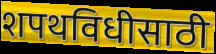
शपथविधीसाठी